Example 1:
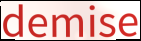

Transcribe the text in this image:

demise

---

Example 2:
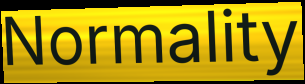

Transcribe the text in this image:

Normality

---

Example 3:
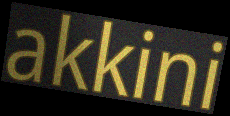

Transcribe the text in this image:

akkini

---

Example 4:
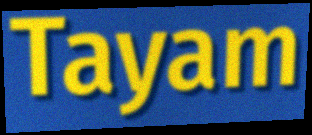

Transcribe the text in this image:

Tayam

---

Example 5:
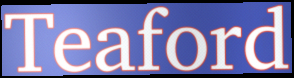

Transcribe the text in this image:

Teaford